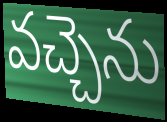
వచ్చెను